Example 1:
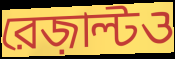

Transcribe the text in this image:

রেজ়াল্টও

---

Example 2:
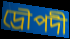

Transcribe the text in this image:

দ্রৌপদী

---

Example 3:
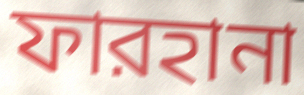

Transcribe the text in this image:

ফারহানা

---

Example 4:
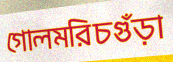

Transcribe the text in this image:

গোলমরিচগুঁড়া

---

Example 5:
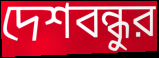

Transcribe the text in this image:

দেশবন্ধুর